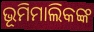
ଭୂମିମାଲିକଙ୍କ